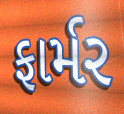
ફાર્મર